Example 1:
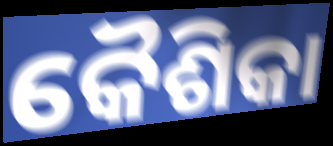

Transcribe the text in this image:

କୈଶିକା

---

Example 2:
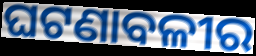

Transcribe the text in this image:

ଘଟଣାବଳୀର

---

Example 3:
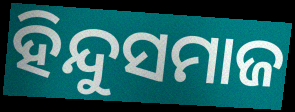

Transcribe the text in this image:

ହିନ୍ଦୁସମାଜ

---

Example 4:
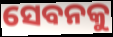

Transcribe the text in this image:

ସେବନକୁ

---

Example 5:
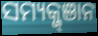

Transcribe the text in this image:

ସମ୍ୟକ୍ଜ୍ଞାନ